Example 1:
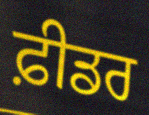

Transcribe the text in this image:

ਫ਼ੀਡਰ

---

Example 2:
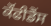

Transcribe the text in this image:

ਕੌਂਫੀਡੈਂਸ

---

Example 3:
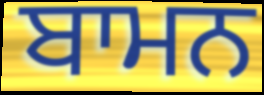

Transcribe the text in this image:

ਬਾਮਨ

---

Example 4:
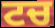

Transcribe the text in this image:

ਟਚ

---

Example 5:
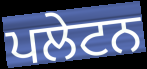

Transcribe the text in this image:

ਪਲੇਟਨ